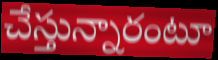
చేస్తున్నారంటూ